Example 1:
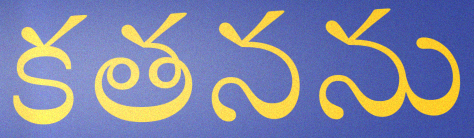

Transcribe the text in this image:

కతనను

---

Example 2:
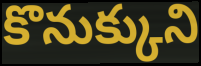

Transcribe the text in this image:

కొనుక్కుని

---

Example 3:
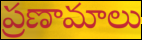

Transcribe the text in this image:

ప్రణామాలు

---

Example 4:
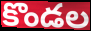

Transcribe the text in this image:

కొండల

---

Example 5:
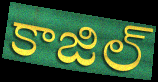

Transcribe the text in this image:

కాజిల్